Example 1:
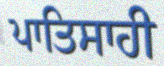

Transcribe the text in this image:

ਪਾਤਿਸਾਹੀ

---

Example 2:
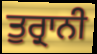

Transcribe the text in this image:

ਤੁਰ੍ਰਾਨੀ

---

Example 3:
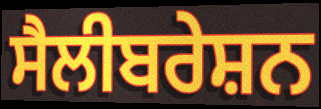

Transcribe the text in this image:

ਸੈਲੀਬਰੇਸ਼ਨ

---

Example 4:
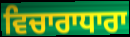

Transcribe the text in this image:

ਵਿਚਾਰਾਧਾਰਾ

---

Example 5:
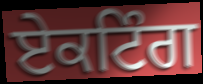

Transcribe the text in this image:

ਏਕਟਿੰਗ